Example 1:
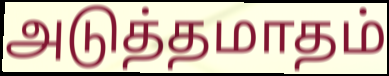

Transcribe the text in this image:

அடுத்தமாதம்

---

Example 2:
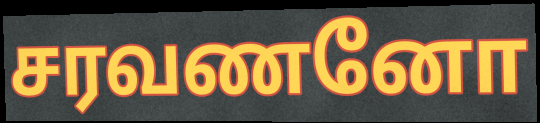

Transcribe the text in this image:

சரவணனோ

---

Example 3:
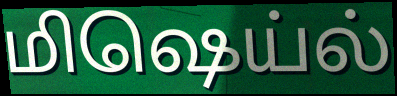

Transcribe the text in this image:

மிஷெய்ல்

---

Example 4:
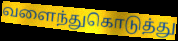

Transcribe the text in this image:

வளைந்துகொடுத்து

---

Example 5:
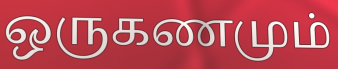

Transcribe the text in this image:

ஒருகணமும்